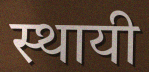
स्‍थायी